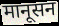
मानूसन